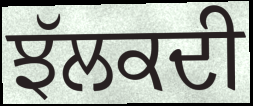
ਝੱਲਕਦੀ